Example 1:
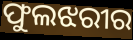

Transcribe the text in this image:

ଫୁଲଝରୀର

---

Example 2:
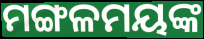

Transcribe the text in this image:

ମଙ୍ଗଳମୟଙ୍କ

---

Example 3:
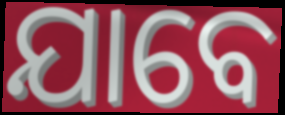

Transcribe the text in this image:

ଯାବେ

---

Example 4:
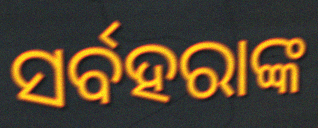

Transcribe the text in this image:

ସର୍ବହରାଙ୍କ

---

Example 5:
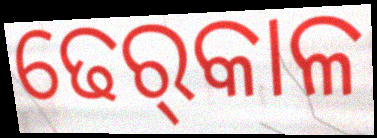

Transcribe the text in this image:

ଢେର୍‌କାଳ